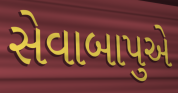
સેવાબાપુએ